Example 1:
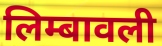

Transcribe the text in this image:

लिम्बावली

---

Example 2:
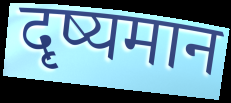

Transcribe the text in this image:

दृष्यमान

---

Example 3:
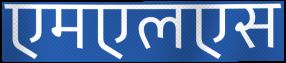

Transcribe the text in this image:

एमएलएस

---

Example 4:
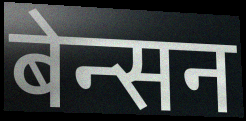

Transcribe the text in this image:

बेन्सन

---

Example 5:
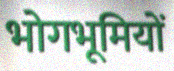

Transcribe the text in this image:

भोगभूमियों